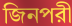
জিনপরী